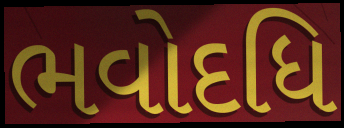
ભવોદધિ